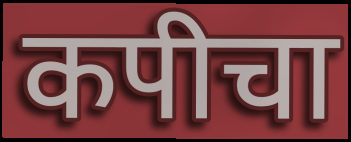
कपीचा